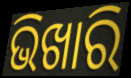
ଭିଖାରି